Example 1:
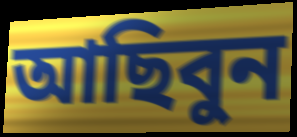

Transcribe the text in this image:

আছিবুন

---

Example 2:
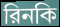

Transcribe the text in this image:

রিনকি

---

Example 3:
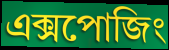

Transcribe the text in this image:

এক্সপোজিং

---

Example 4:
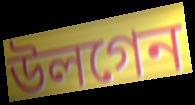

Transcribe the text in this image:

উলগেন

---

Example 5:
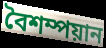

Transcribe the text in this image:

বৈশম্পয়ান